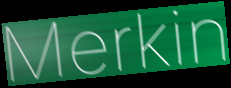
Merkin